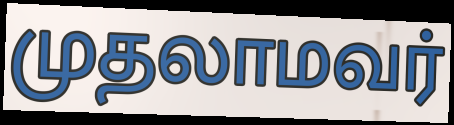
முதலாமவர்